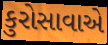
કુરોસાવાએ